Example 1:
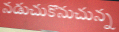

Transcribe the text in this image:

నడుచుకొనుచున్న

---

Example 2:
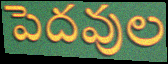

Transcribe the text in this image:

పెదవుల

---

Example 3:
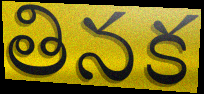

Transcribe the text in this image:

తినక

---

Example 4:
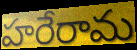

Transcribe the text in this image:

హరేరామ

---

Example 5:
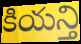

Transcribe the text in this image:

కియన్తి